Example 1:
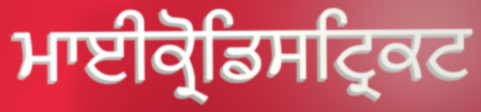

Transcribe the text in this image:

ਮਾਈਕ੍ਰੋਡਿਸਟ੍ਰਿਕਟ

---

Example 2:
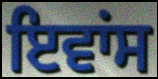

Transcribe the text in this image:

ਇਵਾਂਸ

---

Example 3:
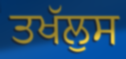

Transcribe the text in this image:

ਤਖੱਲੁਸ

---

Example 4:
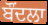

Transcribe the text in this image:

ਬੌਂਦਲਾ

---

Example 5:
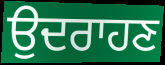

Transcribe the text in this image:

ਉਦਰਾਹਣ